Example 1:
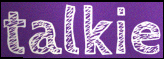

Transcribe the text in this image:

talkie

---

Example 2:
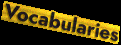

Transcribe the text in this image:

Vocabularies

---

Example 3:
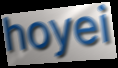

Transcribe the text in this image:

hoyei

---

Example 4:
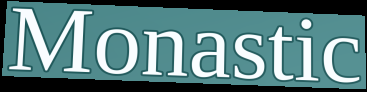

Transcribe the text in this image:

Monastic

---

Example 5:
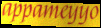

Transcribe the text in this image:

appameyyo